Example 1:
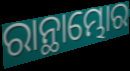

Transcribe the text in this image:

ରାନ୍ଥାମ୍ଭୋର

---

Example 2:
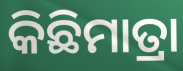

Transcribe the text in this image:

କିଛିମାତ୍ରା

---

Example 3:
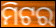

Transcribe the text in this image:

ମିଟର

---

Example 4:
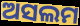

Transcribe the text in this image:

ଅସଲମ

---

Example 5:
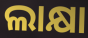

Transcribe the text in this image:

ଲାକ୍ଷା